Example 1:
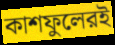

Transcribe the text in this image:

কাশফুলেরই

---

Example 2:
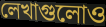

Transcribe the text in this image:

লেখাগুলোও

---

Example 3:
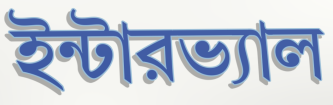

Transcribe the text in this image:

ইন্টারভ্যাল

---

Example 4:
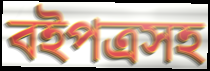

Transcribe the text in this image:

বইপত্রসহ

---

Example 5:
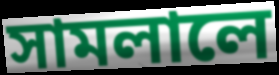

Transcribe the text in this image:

সামলালে